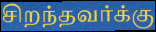
சிறந்தவர்க்கு